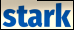
stark